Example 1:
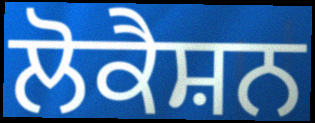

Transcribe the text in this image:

ਲੋਕੈਸ਼ਨ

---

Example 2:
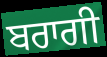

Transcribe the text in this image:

ਬਰਾਗੀ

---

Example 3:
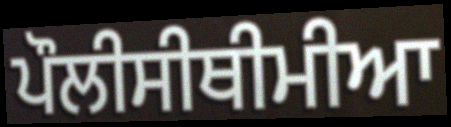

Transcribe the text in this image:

ਪੌਲੀਸੀਥੀਮੀਆ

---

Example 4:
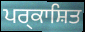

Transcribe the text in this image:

ਪਰ੍ਕਾਸ਼ਿਤ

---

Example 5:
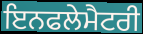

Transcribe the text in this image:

ਇਨਫਲੇਮੈਟਰੀ